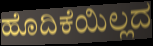
ಹೊದಿಕೆಯಿಲ್ಲದ